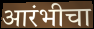
आरंभीचा